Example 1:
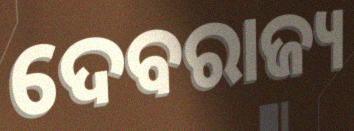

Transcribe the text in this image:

ଦେବରାଜ୍ୟ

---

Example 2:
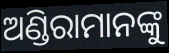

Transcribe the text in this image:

ଅଣ୍ଡିରାମାନଙ୍କୁ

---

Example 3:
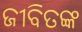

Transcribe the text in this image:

ଜୀବିତଙ୍କ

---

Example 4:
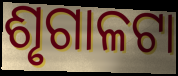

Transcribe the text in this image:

ଶୃଗାଳଟା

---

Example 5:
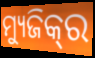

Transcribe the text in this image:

ମ୍ୟୁଜିକ୍‌ର